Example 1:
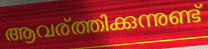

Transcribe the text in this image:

ആവര്ത്തിക്കുന്നുണ്ട്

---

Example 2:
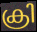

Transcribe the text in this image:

ക്രി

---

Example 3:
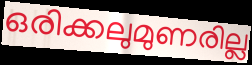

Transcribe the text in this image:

ഒരിക്കലുമുണരില്ല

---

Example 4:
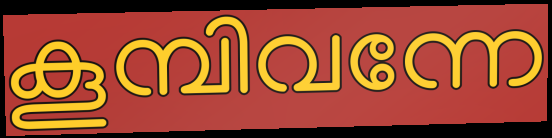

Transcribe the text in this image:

കൂമ്പിവന്നേ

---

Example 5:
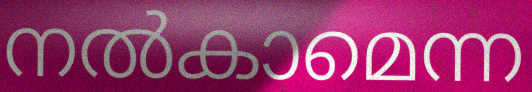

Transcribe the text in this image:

നൽകാമെന്ന